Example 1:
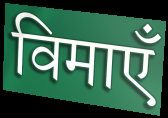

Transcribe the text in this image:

विमाएँ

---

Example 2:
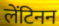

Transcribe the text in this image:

लेंटिनन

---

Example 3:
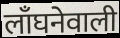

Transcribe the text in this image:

लाँघनेवाली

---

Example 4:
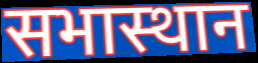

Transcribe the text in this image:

सभास्थान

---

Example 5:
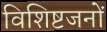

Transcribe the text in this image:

विशिष्टजनों